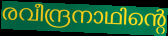
രവീന്ദ്രനാഥിന്റെ